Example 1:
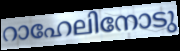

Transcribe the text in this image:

റാഹേലിനോടു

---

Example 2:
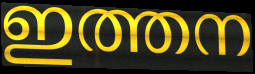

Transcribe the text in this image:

ഇത്തന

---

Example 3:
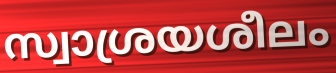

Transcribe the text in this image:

സ്വാശ്രയശീലം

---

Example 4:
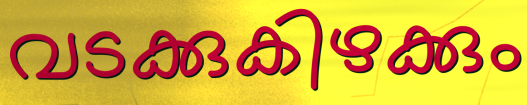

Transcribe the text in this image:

വടക്കുകിഴക്കും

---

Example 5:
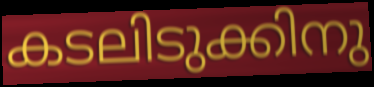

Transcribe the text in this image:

കടലിടുക്കിനു